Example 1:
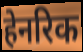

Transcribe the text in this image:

हेनरिक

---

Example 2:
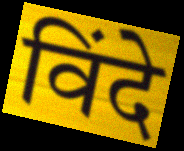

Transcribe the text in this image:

विंदे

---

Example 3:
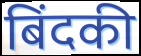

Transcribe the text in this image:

बिंदकी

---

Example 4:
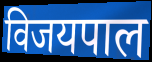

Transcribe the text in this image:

विजयपाल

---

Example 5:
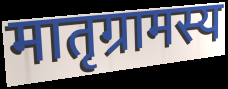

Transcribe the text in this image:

मातृग्रामस्य